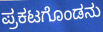
ಪ್ರಕಟಗೊಂಡನು